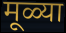
मूळ्या